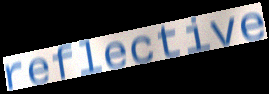
reflective